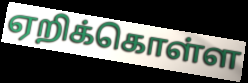
ஏறிக்கொள்ள